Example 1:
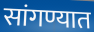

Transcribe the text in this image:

सांगण्यात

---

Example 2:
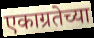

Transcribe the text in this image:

एकाग्रतेच्या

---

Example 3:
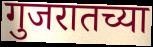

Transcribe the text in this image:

गुजरातच्या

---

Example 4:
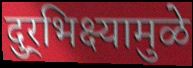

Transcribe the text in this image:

दुर्भिक्ष्यामुळे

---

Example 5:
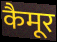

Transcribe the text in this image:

कैमूर